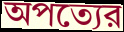
অপত্যের